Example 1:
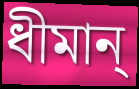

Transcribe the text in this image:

ধীমান্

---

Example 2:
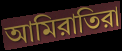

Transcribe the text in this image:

আমিরাতিরা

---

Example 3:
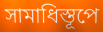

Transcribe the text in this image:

সামাধিস্তূপে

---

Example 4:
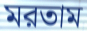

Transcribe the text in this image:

মরতাম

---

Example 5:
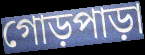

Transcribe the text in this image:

গোড়পাড়া